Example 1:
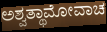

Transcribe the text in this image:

ಅಶ್ವತ್ಥಾಮೋವಾಚ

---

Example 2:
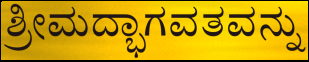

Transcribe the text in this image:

ಶ್ರೀಮದ್ಭಾಗವತವನ್ನು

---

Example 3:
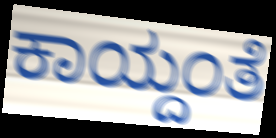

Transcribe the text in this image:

ಕಾಯ್ದಂತೆ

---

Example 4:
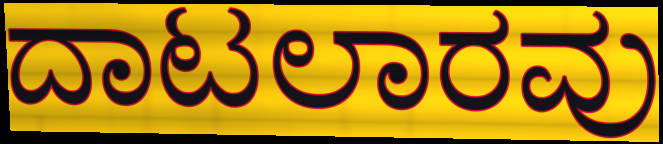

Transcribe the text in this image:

ದಾಟಲಾರವು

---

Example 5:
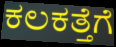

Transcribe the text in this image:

ಕಲಕತ್ತೆಗೆ